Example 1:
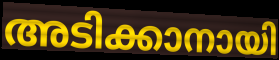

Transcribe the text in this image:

അടിക്കാനായി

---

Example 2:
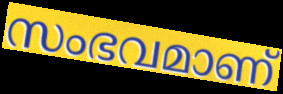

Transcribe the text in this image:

സംഭവമാണ്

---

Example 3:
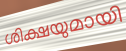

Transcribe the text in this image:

ശിക്ഷയുമായി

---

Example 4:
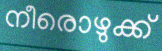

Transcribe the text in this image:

നീരൊഴുക്ക്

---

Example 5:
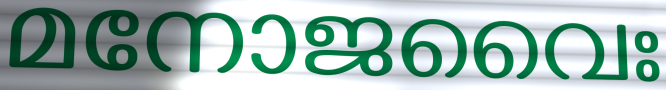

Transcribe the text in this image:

മനോജവൈഃ